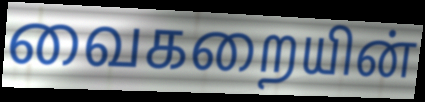
வைகறையின்